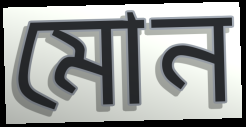
মোন